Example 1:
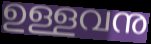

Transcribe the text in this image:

ഉള്ളവനു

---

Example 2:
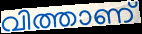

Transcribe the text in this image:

വിത്താണ്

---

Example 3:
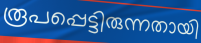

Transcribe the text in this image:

രൂപപ്പെട്ടിരുന്നതായി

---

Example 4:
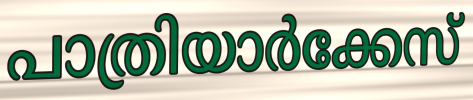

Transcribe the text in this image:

പാത്രിയാർക്കേസ്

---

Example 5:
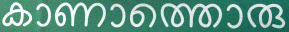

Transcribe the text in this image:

കാണാത്തൊരു